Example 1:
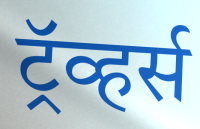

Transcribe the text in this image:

ट्रॅव्हर्स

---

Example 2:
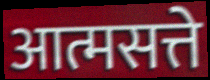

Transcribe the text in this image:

आत्मसत्ते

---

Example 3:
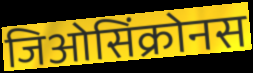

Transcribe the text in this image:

जिओसिंक्रोनस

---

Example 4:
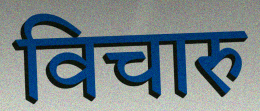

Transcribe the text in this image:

विचारु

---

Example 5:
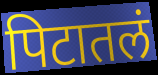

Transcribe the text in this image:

पिटातलं